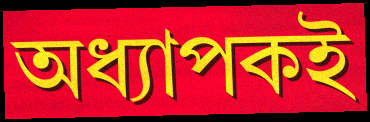
অধ্যাপকই